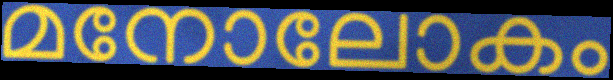
മനോലോകം